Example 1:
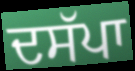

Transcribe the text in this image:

ਦਸੱਪਾ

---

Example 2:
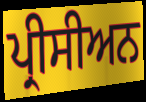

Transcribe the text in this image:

ਪ੍ਰੀਸੀਅਨ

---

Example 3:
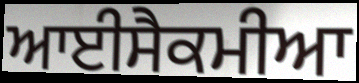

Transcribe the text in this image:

ਆਈਸੈਕਮੀਆ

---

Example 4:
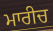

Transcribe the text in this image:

ਮਾਰੀਚ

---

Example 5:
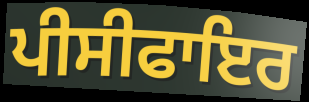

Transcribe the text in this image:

ਪੀਸੀਫਾਇਰ